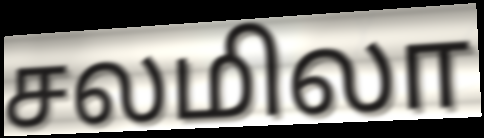
சலமிலா